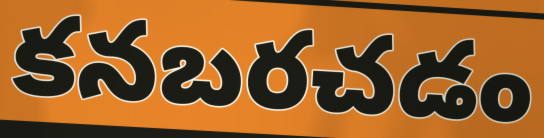
కనబరచడం